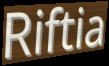
Riftia